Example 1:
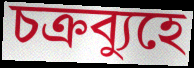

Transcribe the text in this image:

চক্রব্যুহে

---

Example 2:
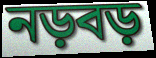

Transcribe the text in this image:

নড়বড়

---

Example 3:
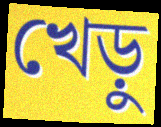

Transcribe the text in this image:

খেড়ু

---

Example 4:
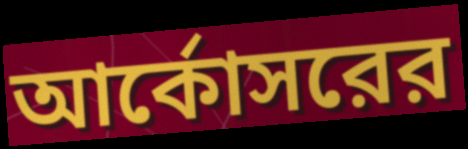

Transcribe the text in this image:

আর্কোসরের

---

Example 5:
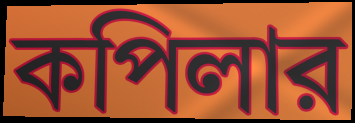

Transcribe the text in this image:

কপিলার